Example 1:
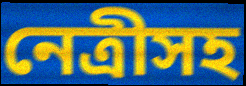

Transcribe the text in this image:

নেত্রীসহ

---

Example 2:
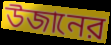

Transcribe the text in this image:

উজানের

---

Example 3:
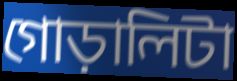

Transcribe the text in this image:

গোড়ালিটা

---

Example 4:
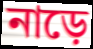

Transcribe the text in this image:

নাড়ে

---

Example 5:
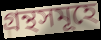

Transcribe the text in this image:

গ্রন্থসমূহে